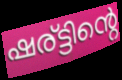
ഷര്ട്ടിന്റെ